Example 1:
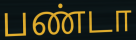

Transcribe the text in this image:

பண்டா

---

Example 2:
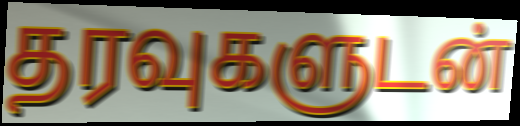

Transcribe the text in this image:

தரவுகளுடன்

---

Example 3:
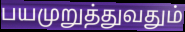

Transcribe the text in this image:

பயமுறுத்துவதும்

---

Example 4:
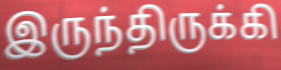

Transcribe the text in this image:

இருந்திருக்கி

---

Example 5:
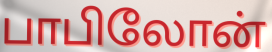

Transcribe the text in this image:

பாபிலோன்